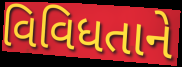
વિવિધતાને